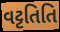
વટ્ટતિતિ